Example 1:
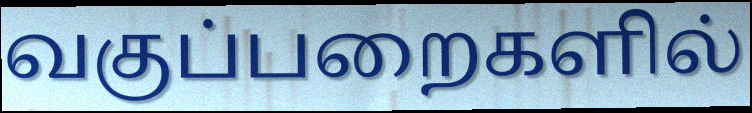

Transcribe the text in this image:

வகுப்பறைகளில்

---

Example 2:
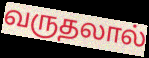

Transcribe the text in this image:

வருதலால்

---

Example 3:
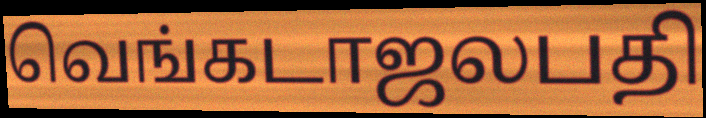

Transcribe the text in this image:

வெங்கடாஜலபதி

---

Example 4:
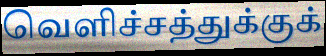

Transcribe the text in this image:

வெளிச்சத்துக்குக்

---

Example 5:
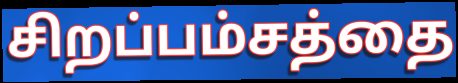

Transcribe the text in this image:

சிறப்பம்சத்தை